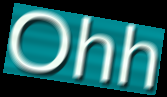
Ohh